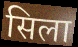
सिला